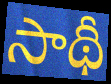
సాథీ